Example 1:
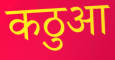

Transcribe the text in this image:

कठुआ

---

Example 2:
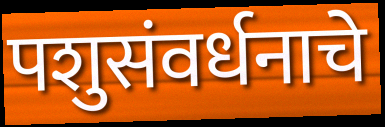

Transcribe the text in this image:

पशुसंवर्धनाचे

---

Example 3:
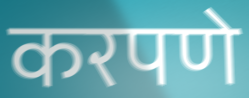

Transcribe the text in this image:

करपणे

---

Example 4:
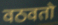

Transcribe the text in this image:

वठवतो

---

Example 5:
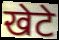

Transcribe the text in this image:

खेटे